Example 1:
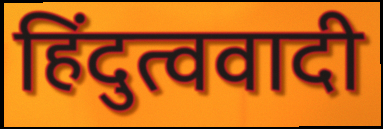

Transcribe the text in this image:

हिंदुत्ववादी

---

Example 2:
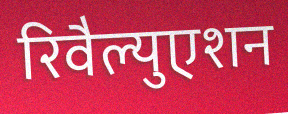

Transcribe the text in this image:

रिवैल्युएशन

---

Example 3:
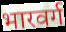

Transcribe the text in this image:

भारवर्ग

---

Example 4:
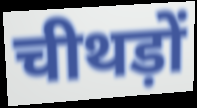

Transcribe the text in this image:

चीथड़ों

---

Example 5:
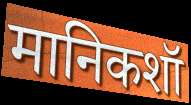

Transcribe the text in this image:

मानिकशॉ